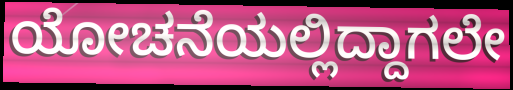
ಯೋಚನೆಯಲ್ಲಿದ್ದಾಗಲೇ